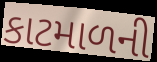
કાટમાળની